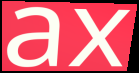
ax